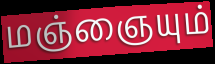
மஞ்ஞையும்